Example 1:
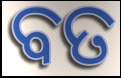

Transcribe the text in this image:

ବତ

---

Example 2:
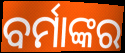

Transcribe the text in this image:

ବର୍ମାଙ୍କର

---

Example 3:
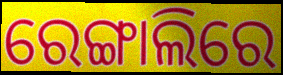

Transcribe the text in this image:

ରେଙ୍ଗାଲିରେ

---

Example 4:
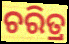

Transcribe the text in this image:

ଚରିତ୍ର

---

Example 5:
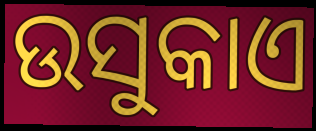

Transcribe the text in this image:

ଉସୁକାଏ